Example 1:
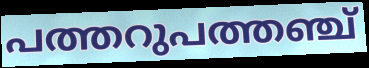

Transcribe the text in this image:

പത്തറുപത്തഞ്ച്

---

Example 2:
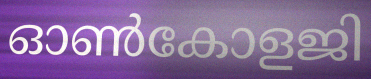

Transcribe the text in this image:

ഓൺകോളജി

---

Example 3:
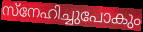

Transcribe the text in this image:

സ്നേഹിച്ചുപോകും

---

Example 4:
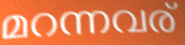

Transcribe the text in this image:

മറന്നവര്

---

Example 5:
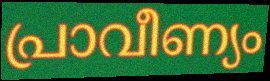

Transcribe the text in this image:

പ്രാവീണ്യം